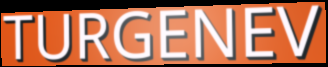
TURGENEV